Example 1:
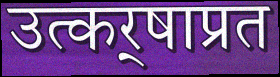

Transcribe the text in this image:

उत्कर्षाप्रत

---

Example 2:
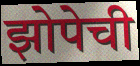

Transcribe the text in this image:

झोपेची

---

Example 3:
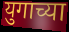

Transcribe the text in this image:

युगाच्या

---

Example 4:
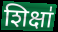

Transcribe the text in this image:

शिक्षा॑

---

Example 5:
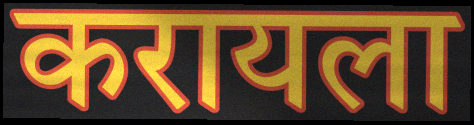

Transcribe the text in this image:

करायला